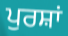
ਪੁਰਸ਼ਾਂ